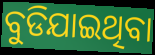
ବୁଡିଯାଇଥିବା